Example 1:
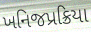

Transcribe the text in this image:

ખનિજપ્રક્રિયા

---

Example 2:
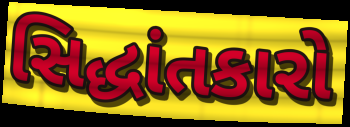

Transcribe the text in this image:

સિદ્ધાંતકારો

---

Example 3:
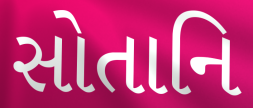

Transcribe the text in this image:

સોતાનિ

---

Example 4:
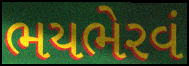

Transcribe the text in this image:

ભયભેરવં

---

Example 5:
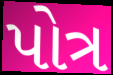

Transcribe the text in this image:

પોત્ર